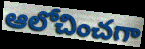
ఆలోచించగా